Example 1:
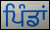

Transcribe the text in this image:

ਪਿੰਡਾਂ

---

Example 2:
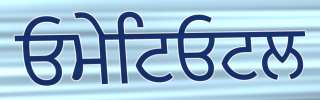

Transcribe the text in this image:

ਓਮੇਟਿਓਟਲ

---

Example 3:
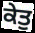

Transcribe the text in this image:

ਕੇਤੁ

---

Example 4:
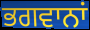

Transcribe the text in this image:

ਭਗਵਾਨਾਂ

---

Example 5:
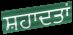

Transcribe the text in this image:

ਸ਼ਹਾਦਤਾਂ